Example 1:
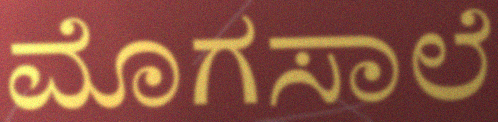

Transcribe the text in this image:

ಮೊಗಸಾಲೆ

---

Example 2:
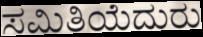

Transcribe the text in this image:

ಸಮಿತಿಯೆದುರು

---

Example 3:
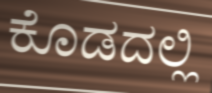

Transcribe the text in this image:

ಕೊಡದಲ್ಲಿ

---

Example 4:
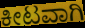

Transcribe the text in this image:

ಕೀಟವಾಗಿ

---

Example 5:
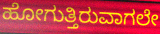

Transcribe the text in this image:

ಹೋಗುತ್ತಿರುವಾಗಲೇ